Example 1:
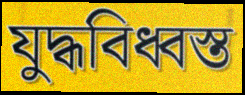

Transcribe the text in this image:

যুদ্ধবিধ্বস্ত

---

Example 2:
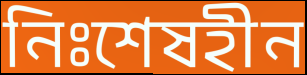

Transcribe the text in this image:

নিঃশেষহীন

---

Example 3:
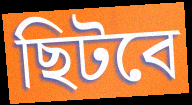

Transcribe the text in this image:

ছিটবে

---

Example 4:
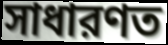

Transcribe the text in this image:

সাধারণত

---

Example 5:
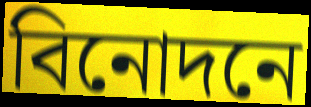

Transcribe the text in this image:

বিনোদনে